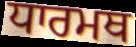
ਧਾਰਮਥ